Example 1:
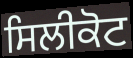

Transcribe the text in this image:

ਸਿਲੀਕੋਟ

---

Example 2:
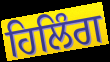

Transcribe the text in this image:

ਹਿਲਿੰਗ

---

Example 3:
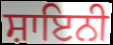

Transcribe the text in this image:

ਸ਼ਾਇਨੀ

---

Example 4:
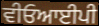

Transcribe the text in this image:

ਵੀਓਆਈਪੀ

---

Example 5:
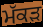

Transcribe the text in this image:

ਮੱਕੜ